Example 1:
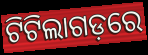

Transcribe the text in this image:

ଟିଟିଲାଗଡ଼ରେ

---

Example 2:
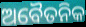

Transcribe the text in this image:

ଅବୈତନିକ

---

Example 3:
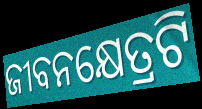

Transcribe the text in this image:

ଜୀବନକ୍ଷେତ୍ରଟି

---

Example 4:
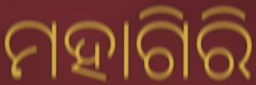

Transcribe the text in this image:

ମହାଗିରି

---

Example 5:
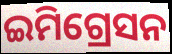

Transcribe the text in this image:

ଇମିଗ୍ରେସନ